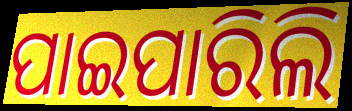
ପାଇପାରିଲି